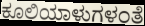
ಕೂಲಿಯಾಳುಗಳಂತೆ